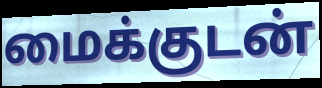
மைக்குடன்